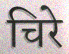
चिरे